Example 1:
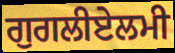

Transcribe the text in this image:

ਗੁਗਲੀਏਲਮੀ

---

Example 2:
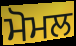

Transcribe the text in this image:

ਮੋਮਲ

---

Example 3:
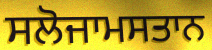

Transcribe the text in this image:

ਸਲੋਜਾਮਸਤਾਨ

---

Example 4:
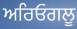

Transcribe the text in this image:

ਅਰਿਓਗਲੂ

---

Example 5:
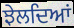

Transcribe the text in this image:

ਝੇਲਦਿਆਂ